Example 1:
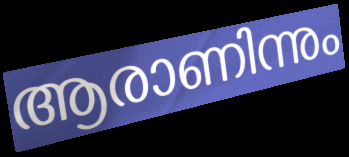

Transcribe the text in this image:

ആരാണിന്നും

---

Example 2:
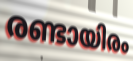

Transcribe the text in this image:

രണ്ടായിരം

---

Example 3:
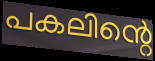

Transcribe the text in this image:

പകലിന്റെ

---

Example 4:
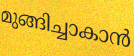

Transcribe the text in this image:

മുങ്ങിച്ചാകാൻ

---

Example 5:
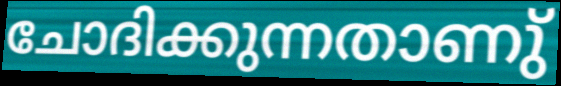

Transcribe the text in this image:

ചോദിക്കുന്നതാണു്